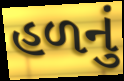
હળનું